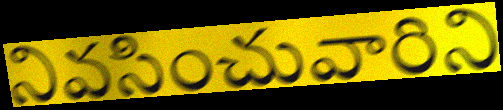
నివసించువారిని